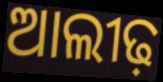
ଆଲୀଢ଼